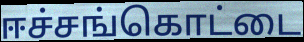
ஈச்சங்கொட்டை